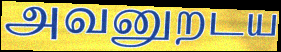
அவனுறடய